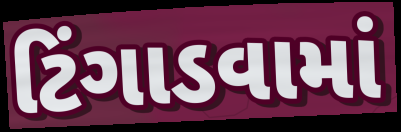
ટિંગાડવામાં